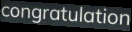
congratulation